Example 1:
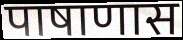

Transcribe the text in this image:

पाषाणास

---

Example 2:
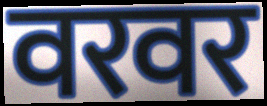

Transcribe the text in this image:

वरवर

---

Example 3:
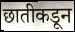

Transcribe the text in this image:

छातीकडून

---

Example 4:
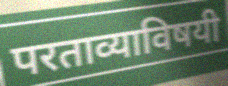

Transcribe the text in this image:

परताव्याविषयी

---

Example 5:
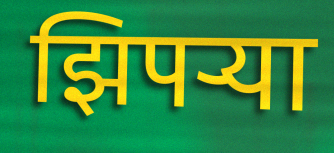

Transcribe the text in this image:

झिपऱ्या